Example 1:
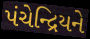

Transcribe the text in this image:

પંચેન્દ્રિયને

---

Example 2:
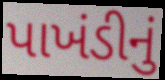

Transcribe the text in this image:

પાખંડીનું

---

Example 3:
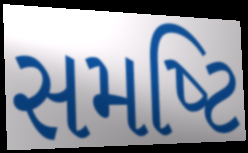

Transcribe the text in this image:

સમષ્‍ટિ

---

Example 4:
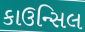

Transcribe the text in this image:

કાઉન્‍સિલ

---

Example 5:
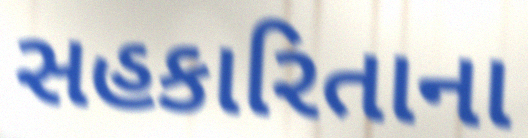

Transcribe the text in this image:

સહકારિતાના